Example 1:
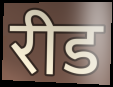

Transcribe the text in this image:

रीड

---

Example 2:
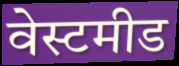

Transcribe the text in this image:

वेस्टमीड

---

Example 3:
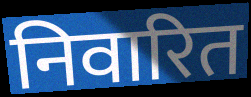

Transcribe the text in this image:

निवारित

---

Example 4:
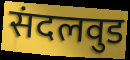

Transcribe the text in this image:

संदलवुड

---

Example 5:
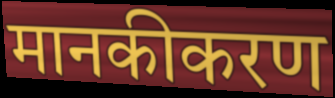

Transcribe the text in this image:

मानकीकरण